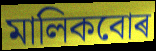
মালিকবোৰ